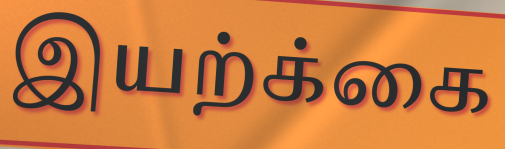
இயற்க்கை